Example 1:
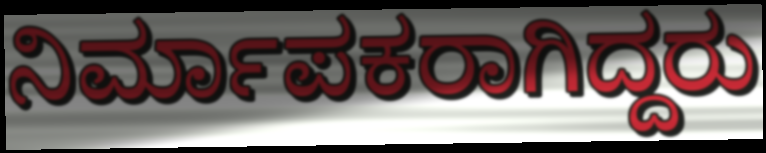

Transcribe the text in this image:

ನಿರ್ಮಾಪಕರಾಗಿದ್ದರು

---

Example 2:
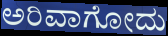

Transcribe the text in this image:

ಅರಿವಾಗೋದು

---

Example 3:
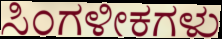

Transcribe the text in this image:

ಸಿಂಗಳೀಕಗಳು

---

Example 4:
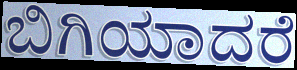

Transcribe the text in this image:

ಬಿಗಿಯಾದರೆ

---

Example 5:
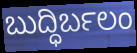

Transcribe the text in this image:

ಬುದ್ಧಿರ್ಬಲಂ